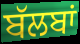
ਬੱਲਬਾਂ